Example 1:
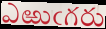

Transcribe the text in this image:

ఎఱుఁగరు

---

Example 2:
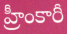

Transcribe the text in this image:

హ్రీంకారీ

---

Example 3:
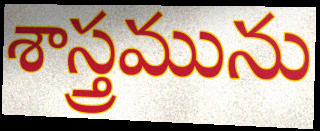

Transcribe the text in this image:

శాస్త్రమును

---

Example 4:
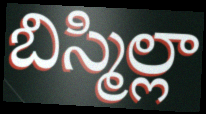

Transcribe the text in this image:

బిస్మిల్లా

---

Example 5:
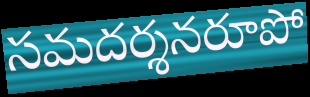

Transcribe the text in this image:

సమదర్శనరూపో